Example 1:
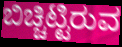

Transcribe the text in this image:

ಬಿಚ್ಚಿಟ್ಟಿರುವ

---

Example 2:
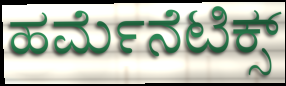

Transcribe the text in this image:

ಹರ್ಮೆನೆಟಿಕ್ಸ್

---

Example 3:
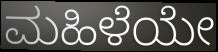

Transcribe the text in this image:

ಮಹಿಳೆಯೇ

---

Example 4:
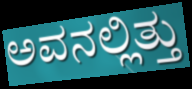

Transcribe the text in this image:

ಅವನಲ್ಲಿತ್ತು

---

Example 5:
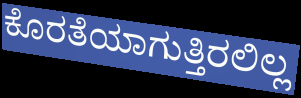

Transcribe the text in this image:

ಕೊರತೆಯಾಗುತ್ತಿರಲಿಲ್ಲ